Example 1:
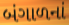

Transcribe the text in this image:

બંગાળનાં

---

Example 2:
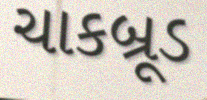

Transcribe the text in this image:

ચાકબ્રૂડ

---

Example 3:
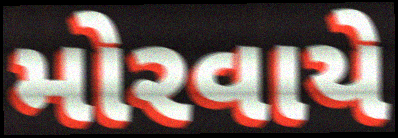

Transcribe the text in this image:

મોરવાયે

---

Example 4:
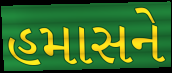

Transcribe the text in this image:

હમાસને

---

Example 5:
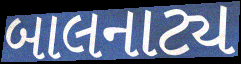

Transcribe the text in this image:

બાલનાટ્ય